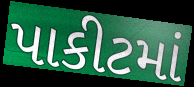
પાકીટમાં